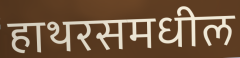
हाथरसमधील